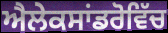
ਐਲੇਕਸਾਂਡਰੋਵਿੱਚ